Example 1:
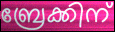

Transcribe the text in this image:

ബ്രേക്കിന്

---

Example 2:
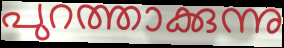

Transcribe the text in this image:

പുറത്താക്കുന്നു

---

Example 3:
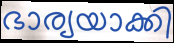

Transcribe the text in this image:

ഭാര്യയാക്കി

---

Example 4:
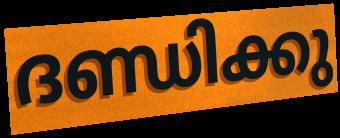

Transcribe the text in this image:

ദണ്ഡിക്കു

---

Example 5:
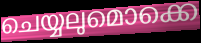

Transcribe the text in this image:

ചെയ്യലുമൊക്കെ